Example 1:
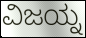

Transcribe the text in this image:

ವಿಜಯ್ನ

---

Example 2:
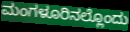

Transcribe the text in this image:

ಮಂಗಳೂರಿನಲ್ಲೊಂದು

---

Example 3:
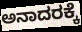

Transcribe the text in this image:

ಅನಾದರಕ್ಕೆ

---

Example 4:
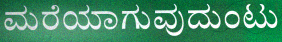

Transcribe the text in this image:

ಮರೆಯಾಗುವುದುಂಟು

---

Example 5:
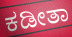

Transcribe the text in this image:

ಕಡೀತಾ